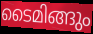
ടൈമിങ്ങും